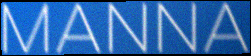
MANNA